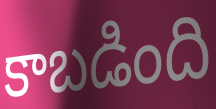
కాబడింది